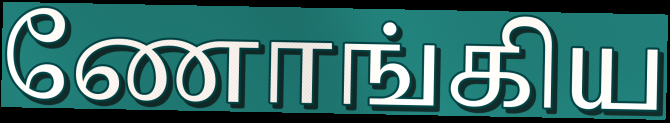
ணோங்கிய